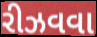
રીઝવવા